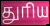
துரிய